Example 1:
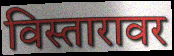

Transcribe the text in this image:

विस्तारावर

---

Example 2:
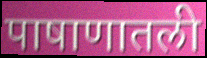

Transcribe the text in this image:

पाषाणातली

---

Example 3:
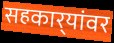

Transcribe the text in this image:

सहकार्‍यांवर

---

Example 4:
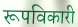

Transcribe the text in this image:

रूपविकारी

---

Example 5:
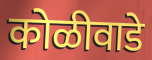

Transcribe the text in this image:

कोळीवाडे